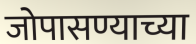
जोपासण्याच्या